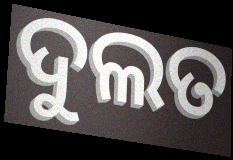
ଦୁଲତ